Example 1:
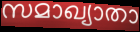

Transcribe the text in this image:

സമാഖ്യാതാ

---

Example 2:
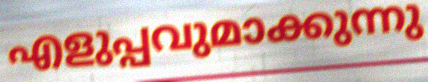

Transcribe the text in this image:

എളുപ്പവുമാക്കുന്നു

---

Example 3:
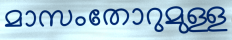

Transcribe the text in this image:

മാസംതോറുമുള്ള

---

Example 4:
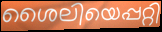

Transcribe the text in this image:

ശൈലിയെപ്പറ്റി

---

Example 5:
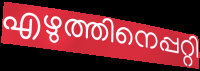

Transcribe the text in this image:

എഴുത്തിനെപ്പറ്റി